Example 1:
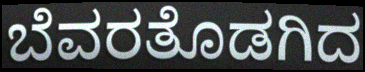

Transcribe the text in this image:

ಬೆವರತೊಡಗಿದ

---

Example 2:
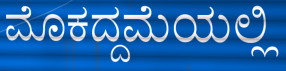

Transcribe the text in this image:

ಮೊಕದ್ದಮೆಯಲ್ಲಿ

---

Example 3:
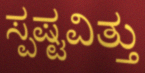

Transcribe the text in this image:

ಸ್ಪಷ್ಟವಿತ್ತು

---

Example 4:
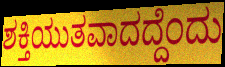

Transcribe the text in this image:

ಶಕ್ತಿಯುತವಾದದ್ದೆಂದು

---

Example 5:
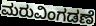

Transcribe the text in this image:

ಮರುವಿಂಗಡಣೆ